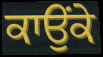
ਕਾਉਂਕੇ